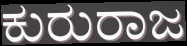
ಕುರುರಾಜ